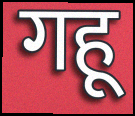
गहू